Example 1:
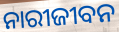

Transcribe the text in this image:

ନାରୀଜୀବନ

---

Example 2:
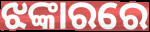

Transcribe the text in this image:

ଝଙ୍କାରରେ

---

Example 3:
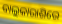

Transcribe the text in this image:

ବାଲୁକାରାଶିରେ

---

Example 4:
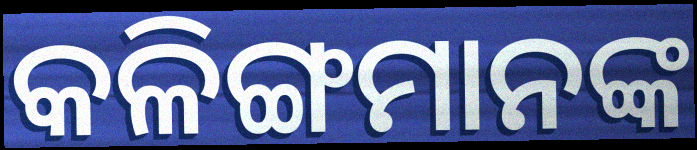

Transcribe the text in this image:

କଳିଙ୍ଗମାନଙ୍କ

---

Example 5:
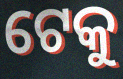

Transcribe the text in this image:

ଟେକୁ